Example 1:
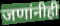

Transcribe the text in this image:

जणांनीही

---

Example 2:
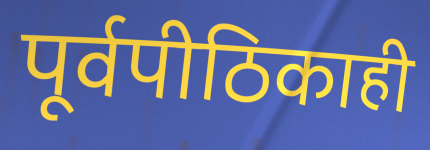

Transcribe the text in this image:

पूर्वपीठिकाही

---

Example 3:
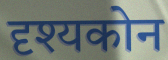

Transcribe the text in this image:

दृश्‍यकोन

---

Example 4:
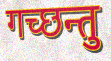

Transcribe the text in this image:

गच्छन्तु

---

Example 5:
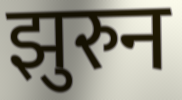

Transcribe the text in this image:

झुरुन